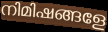
നിമിഷങ്ങളേ